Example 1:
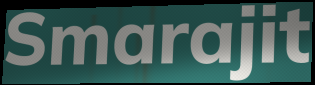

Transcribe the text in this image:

Smarajit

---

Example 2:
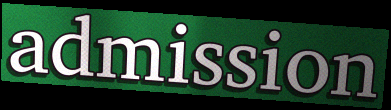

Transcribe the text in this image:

admission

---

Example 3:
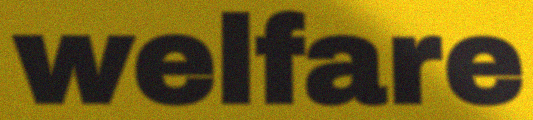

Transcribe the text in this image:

welfare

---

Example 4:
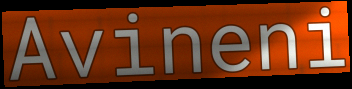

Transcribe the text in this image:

Avineni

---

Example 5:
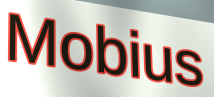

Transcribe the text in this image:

Mobius